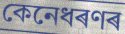
কেনেধৰণৰ